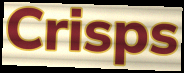
Crisps